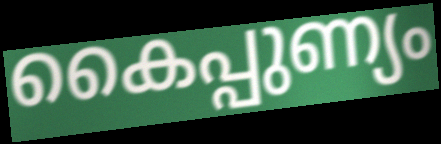
കൈപ്പുണ്യം